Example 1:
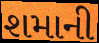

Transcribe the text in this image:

શમાની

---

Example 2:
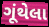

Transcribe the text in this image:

ગૂંથેલા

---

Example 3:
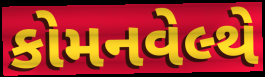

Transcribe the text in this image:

કોમનવેલ્થે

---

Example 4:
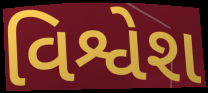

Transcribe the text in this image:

વિશ્વેશ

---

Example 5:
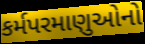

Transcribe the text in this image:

કર્મપરમાણુઓનો